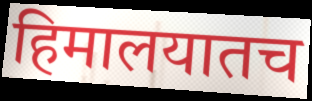
हिमालयातच